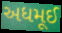
અધમૂઈ